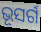
ଭୂସର୍ଗ